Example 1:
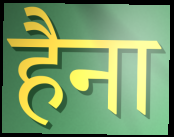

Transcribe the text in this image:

हैना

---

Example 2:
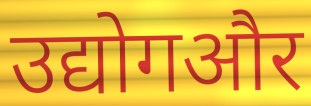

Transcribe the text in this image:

उद्योगऔर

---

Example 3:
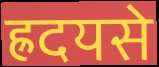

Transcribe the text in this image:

ह्रदयसे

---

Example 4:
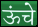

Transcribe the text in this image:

ऊंचे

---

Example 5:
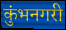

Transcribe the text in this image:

कुंभनगरी